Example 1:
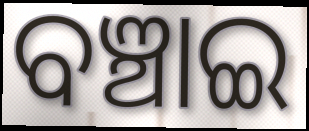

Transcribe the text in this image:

ବଞ୍ଚାଇ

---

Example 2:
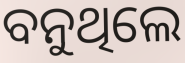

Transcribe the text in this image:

ବନୁଥିଲେ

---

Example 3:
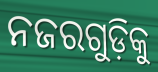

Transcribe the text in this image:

ନଜରଗୁଡ଼ିକୁ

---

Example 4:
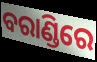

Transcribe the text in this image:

ବରାଣ୍ଡିରେ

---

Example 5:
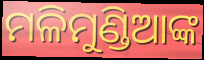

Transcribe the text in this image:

ମଳିମୁଣ୍ଡିଆଙ୍କ